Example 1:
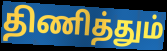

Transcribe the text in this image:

திணித்தும்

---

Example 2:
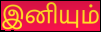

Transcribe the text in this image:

இனியும்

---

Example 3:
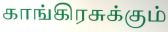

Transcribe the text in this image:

காங்கிரசுக்கும்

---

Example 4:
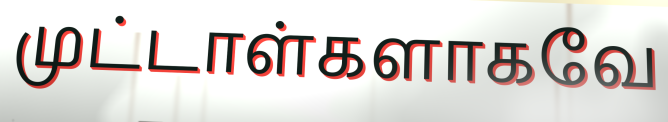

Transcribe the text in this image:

முட்டாள்களாகவே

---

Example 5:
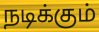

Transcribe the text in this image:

நடிக்கும்